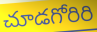
చూడగోరిరి